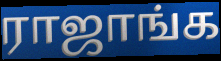
ராஜாங்க